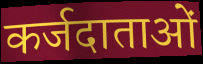
कर्जदाताओं